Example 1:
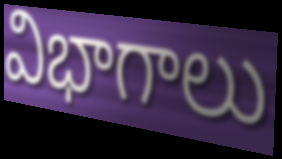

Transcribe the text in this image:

విభాగాలు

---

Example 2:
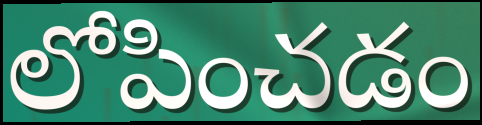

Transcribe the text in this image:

లోపించడం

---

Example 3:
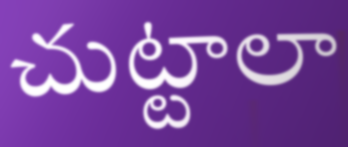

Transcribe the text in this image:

చుట్టాలా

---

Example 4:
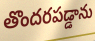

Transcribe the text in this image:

తొందరపడ్డాను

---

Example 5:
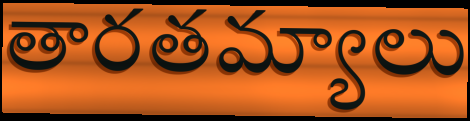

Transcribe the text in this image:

తారతమ్యాలు